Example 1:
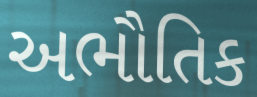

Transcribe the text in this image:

અભૌતિક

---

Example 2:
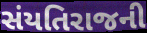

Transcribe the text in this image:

સંયતિરાજની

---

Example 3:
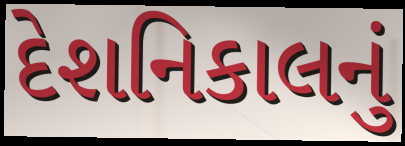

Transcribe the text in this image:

દેશનિકાલનું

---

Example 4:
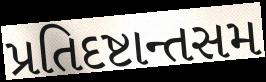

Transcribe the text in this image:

પ્રતિદષ્ટાન્તસમ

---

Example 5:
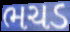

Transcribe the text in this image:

ભચડ